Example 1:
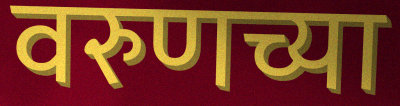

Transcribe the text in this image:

वरुणच्या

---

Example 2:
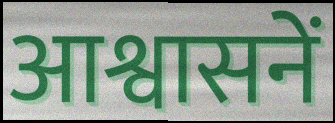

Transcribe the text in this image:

आश्वासनें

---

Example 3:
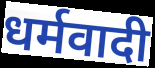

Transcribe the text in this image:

धर्मवादी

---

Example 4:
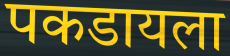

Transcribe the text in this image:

पकडायला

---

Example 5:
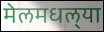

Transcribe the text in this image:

मेलमधल्या